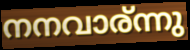
നനവാര്ന്നു